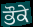
ਭੌਕੇ